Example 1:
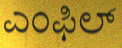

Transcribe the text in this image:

ಎಂಫಿಲ್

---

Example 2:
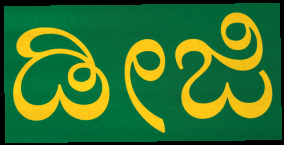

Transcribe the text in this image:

ಡೀಜಿ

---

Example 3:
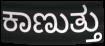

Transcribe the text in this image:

ಕಾಣುತ್ತು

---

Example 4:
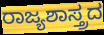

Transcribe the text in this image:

ರಾಜ್ಯಶಾಸ್ತ್ರದ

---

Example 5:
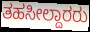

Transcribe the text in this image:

ತಹಸೀಲ್ದಾರರು